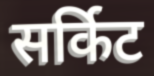
सर्किट